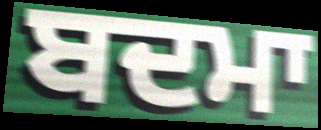
ਬਦਮਾ